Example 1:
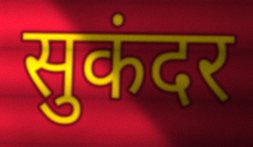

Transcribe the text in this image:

सुकंदर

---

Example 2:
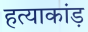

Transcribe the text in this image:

हत्याकांड़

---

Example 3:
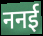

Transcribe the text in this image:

ननई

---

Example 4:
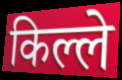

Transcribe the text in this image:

किल्ले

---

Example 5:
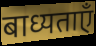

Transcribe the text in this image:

बाध्यताएँ